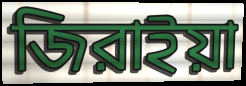
জিরাইয়া